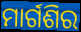
ମାର୍ଗଶିର